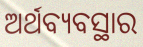
ଅର୍ଥବ୍ୟବସ୍ଥାର